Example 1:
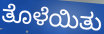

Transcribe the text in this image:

ತೊಳೆಯಿತು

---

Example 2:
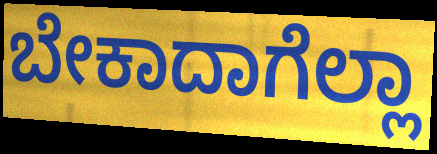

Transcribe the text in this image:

ಬೇಕಾದಾಗೆಲ್ಲಾ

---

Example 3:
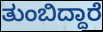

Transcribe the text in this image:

ತುಂಬಿದ್ದಾರೆ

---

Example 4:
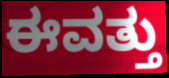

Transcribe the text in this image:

ಈವತ್ತು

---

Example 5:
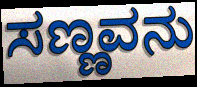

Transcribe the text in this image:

ಸಣ್ಣವನು